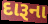
દારૂના